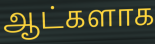
ஆட்களாக